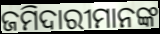
ଜମିଦାରୀମାନଙ୍କ